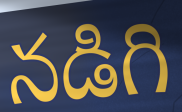
నడిగి